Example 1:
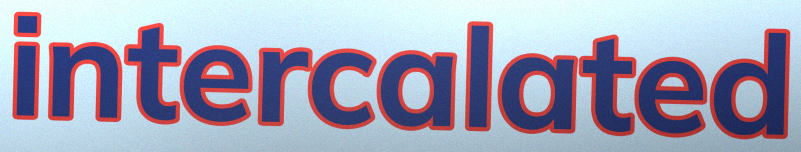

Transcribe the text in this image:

intercalated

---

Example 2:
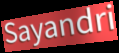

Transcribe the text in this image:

Sayandri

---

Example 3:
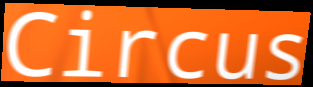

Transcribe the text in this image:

Circus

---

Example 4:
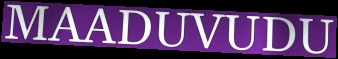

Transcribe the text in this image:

MAADUVUDU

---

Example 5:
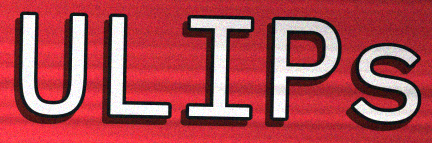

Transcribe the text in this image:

ULIPs